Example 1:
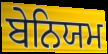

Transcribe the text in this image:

ਬੇਨਿਯਮ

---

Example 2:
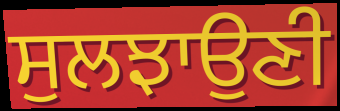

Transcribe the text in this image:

ਸੁਲਝਾਉਣੀ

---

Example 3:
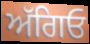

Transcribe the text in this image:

ਅੱਗਿਓ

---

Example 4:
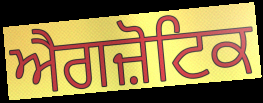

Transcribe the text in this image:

ਐਗਜ਼ੋਟਿਕ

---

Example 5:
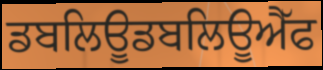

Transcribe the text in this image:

ਡਬਲਿਊਡਬਲਿਊਐੱਫ